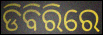
ଡିବିରିରେ